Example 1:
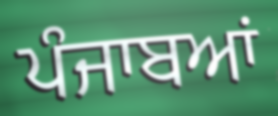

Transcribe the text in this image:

ਪੰਜਾਬਆਂ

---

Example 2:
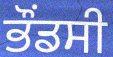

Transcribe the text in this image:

ਭੌਂਡਸੀ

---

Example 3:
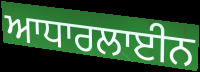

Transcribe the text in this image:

ਆਧਾਰਲਾਈਨ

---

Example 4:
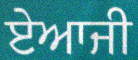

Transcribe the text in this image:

ਏਆਜੀ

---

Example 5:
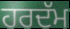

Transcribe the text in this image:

ਹਰਦੱਮ